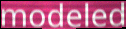
modeled